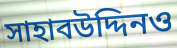
সাহাবউদ্দিনও